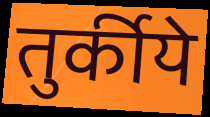
तुर्कीये